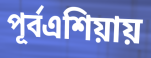
পূর্বএশিয়ায়